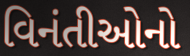
વિનંતીઓનો